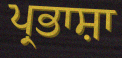
ਪ੍ਰਭਾਸ਼ਾ